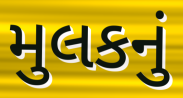
મુલકનું